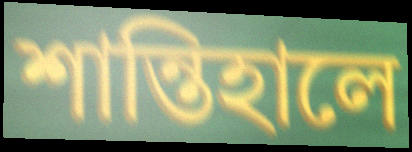
শান্তিহালে